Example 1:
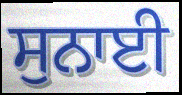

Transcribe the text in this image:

ਸੁਨਾਈ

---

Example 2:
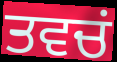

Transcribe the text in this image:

ਤਵਚਂ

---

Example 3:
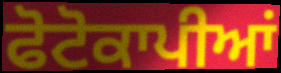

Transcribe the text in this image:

ਫੋਟੋਕਾਪੀਆਂ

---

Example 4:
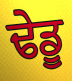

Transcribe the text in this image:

ਢੇਡੂ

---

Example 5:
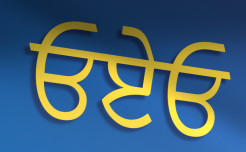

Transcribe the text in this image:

ਓਏਓ